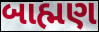
બાહ્મણ